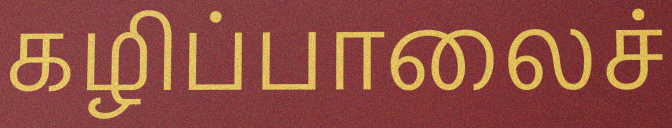
கழிப்பாலைச்